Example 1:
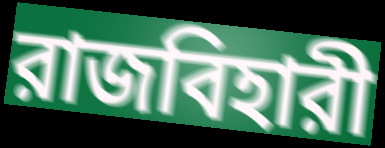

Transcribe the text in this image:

রাজবিহারী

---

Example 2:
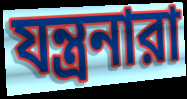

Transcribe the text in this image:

যন্ত্রনারা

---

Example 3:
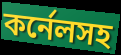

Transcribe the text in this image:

কর্নেলসহ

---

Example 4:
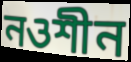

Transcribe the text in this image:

নওশীন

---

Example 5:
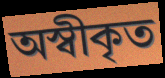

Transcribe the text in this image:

অস্বীকৃত